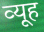
व्‍यूह